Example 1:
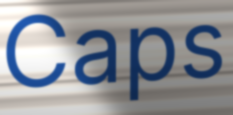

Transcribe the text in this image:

Caps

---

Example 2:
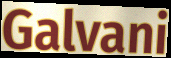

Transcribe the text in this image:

Galvani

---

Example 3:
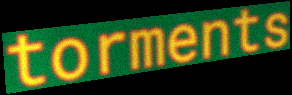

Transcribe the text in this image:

torments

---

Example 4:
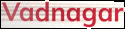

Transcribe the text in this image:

Vadnagar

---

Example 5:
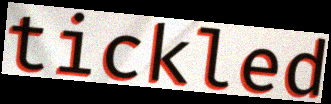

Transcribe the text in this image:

tickled